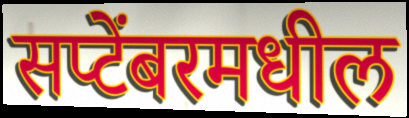
सप्टेंबरमधील